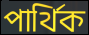
পার্থিক